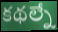
కథల్నే